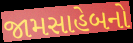
જામસાહેબનો